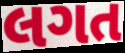
લગત